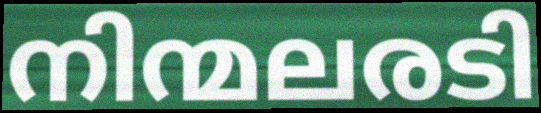
നിന്മലരടി